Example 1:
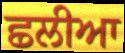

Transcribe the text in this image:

ਛਲੀਆ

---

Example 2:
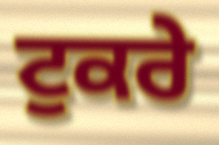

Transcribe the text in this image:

ਟੁਕਰੇ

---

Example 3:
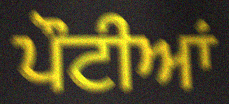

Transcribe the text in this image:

ਪੌਟੀਆਂ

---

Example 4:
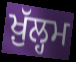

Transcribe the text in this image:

ਖ਼ੁੱਲ੍ਹਮ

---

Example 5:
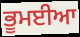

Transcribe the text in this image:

ਭੂਮਈਆ